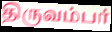
திருவம்பர்